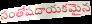
సంతోషదాయకమైన